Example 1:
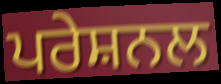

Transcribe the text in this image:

ਪਰੇਸ਼ਨਲ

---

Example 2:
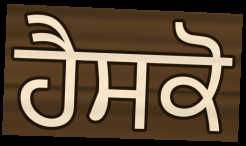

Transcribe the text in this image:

ਹੈਸਕੋ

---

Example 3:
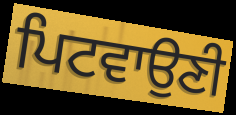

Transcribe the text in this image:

ਪਿਟਵਾਉਣੀ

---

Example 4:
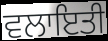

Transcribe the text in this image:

ਵਲਾਇਤੀ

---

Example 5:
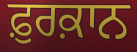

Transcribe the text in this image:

ਫ਼ੁਰਕ਼ਾਨ